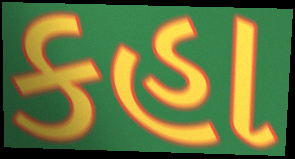
કહા